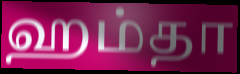
ஹம்தா